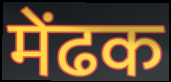
मेंढक